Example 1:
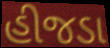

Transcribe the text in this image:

હીજડા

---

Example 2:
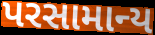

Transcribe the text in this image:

પરસામાન્ય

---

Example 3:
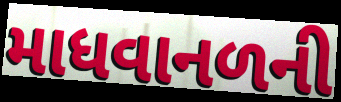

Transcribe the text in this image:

માધવાનળની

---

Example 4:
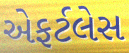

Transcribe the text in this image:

એફર્ટલેસ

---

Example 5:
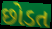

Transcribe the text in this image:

છોડત